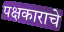
पक्षकाराचे